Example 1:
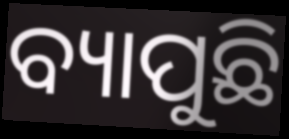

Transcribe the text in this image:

ବ୍ୟାପୁଛି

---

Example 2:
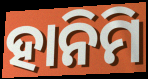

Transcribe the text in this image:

ହାନିମି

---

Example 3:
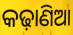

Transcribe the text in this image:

କଢ଼ାଣିଆ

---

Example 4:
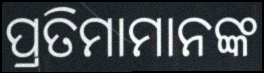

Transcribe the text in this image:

ପ୍ରତିମାମାନଙ୍କ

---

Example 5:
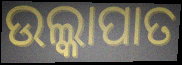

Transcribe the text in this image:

ଉଲ୍କାପାତ